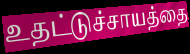
உதட்டுச்சாயத்தை